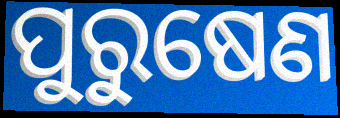
ପୁରୁଷେଣ